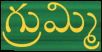
గ్రుమ్మి